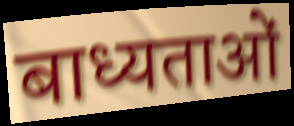
बाध्यताओं